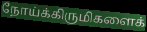
நோய்க்கிருமிகளைக்